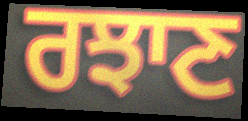
ਰਝਾਣ